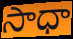
సాధా